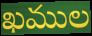
ఖముల